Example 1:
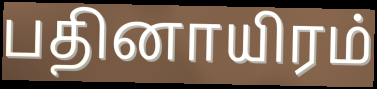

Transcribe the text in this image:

பதினாயிரம்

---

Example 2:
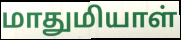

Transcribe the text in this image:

மாதுமியாள்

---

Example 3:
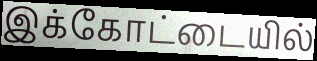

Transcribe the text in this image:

இக்கோட்டையில்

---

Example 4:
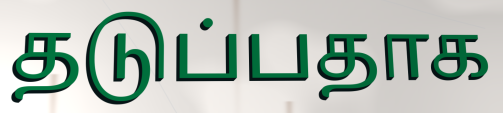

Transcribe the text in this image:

தடுப்பதாக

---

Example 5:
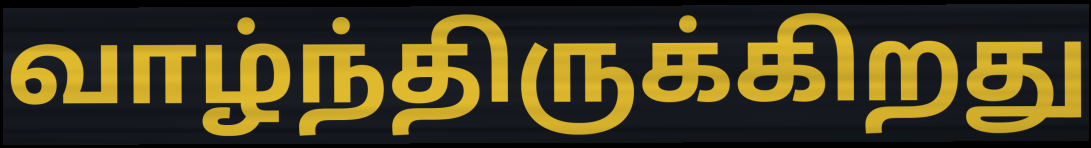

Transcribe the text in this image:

வாழ்ந்திருக்கிறது